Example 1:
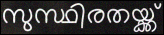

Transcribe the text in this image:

സുസ്ഥിരതയ്ക്ക്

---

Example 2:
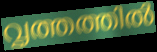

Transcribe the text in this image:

വൃത്തത്തിൽ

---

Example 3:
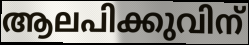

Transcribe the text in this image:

ആലപിക്കുവിന്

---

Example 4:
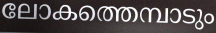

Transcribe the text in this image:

ലോകത്തെമ്പാടും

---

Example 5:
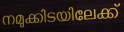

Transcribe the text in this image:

നമുക്കിടയിലേക്ക്